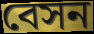
বেসন